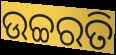
ଉଚ୍ଚରତି